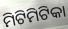
ମିଟିମିଟିକା